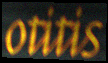
otitis